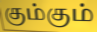
கும்கும்